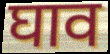
घाव